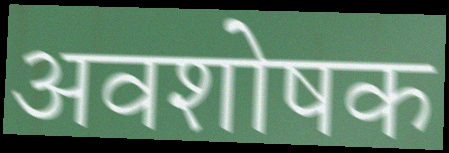
अवशोषक